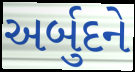
અર્બુદને